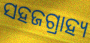
ସହଜଗ୍ରାହ୍ୟ